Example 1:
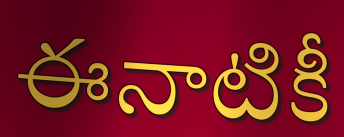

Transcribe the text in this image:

ఈనాటికీ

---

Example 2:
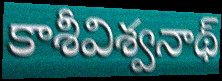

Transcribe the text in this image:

కాశీవిశ్వనాథ్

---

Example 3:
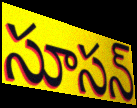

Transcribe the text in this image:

సూసన్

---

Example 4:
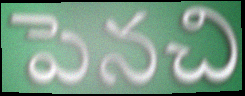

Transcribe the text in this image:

పెనచి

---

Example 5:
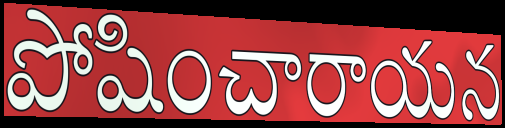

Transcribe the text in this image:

పోషించారాయన